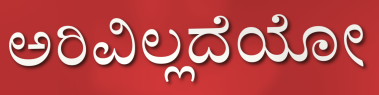
ಅರಿವಿಲ್ಲದೆಯೋ